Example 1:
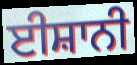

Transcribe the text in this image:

ਈਸ਼ਾਨੀ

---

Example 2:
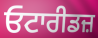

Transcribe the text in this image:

ਓਟਾਰੀਡਜ਼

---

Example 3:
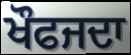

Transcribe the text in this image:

ਖੌਫਜਦਾ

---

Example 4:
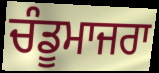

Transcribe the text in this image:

ਚੰਡੂਮਾਜਰਾ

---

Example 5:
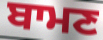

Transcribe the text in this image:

ਬਾਮਣ